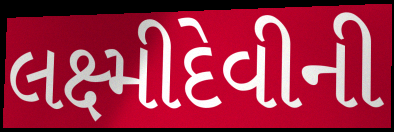
લક્ષ્મીદેવીની